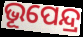
ଭୂପେନ୍ଦ୍ର